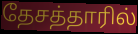
தேசத்தாரில்